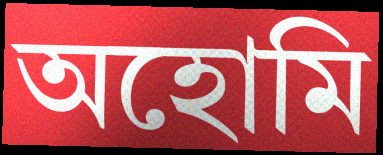
অহোমি